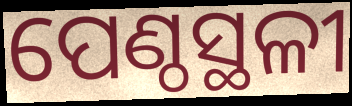
ପେଣ୍ଠସ୍ଥଳୀ